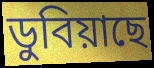
ডুবিয়াছে